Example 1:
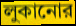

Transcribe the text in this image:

লুকানোর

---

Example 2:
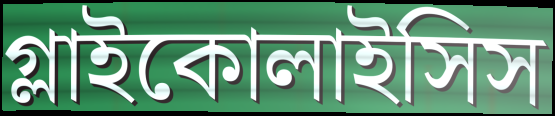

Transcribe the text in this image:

গ্লাইকোলাইসিস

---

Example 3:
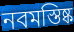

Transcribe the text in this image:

নবমস্তিষ্ক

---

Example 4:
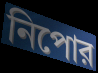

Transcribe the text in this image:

নিপোর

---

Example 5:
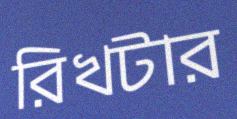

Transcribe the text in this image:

রিখটার